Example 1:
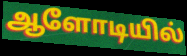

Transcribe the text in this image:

ஆளோடியில்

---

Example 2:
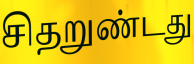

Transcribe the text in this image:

சிதறுண்டது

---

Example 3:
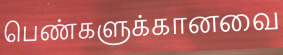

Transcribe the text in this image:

பெண்களுக்கானவை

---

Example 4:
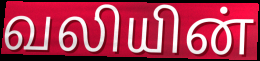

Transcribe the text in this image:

வலியின்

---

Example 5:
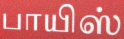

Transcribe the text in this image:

பாயிஸ்